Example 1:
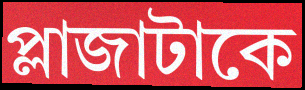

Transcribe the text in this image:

প্লাজাটাকে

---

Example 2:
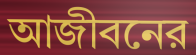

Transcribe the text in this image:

আজীবনের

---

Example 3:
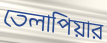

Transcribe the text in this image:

তেলাপিয়ার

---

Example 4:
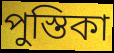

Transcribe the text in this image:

পুস্তিকা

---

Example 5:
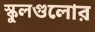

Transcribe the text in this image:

স্কুলগুলোর